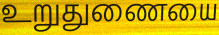
உறுதுணையை